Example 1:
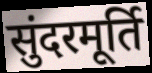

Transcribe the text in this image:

सुंदरमूर्ति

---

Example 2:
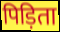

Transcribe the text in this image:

पिड़िता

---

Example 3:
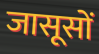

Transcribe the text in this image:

जासूसों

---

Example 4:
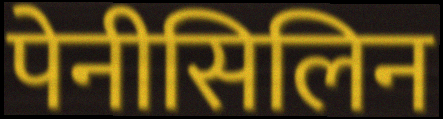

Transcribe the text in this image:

पेनीसिलिन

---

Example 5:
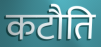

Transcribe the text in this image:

कटौति